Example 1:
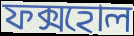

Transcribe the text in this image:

ফক্সহোল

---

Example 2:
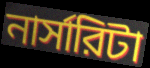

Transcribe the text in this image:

নার্সারিটা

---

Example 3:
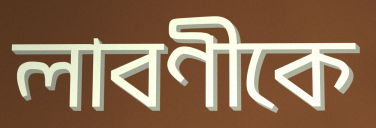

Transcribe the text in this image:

লাবণীকে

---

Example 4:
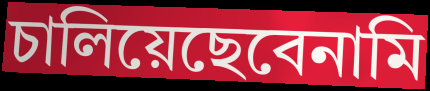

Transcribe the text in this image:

চালিয়েছেবেনামি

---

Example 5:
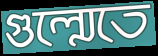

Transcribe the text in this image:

গুল্মেতে